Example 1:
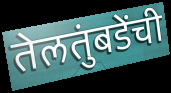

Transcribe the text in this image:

तेलतुंबडेंची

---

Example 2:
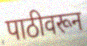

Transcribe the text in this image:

पाठीवरून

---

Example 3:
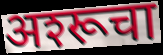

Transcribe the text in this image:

अश्रूचा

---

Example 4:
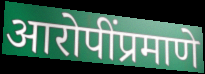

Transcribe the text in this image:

आरोपींप्रमाणे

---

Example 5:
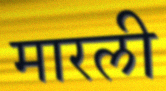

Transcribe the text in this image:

मारली